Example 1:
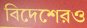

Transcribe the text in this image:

বিদেশেরও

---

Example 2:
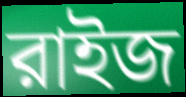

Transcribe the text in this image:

রাইজ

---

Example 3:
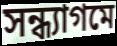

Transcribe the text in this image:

সন্ধ্যাগমে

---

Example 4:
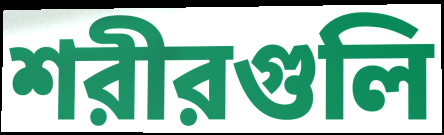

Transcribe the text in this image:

শরীরগুলি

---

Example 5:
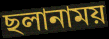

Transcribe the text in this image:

ছলানাময়